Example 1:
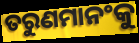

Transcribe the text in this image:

ତରୁଣମାନଂକୁ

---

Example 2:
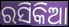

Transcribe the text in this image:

ରସିକିଆ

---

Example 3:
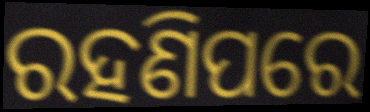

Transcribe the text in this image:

ରହଣିପରେ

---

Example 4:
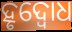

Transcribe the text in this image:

ହୃଦ୍ବୋଧ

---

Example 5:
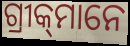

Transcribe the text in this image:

ଗ୍ରୀକ୍‌ମାନେ